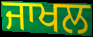
ਜਾਖਲ